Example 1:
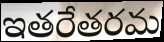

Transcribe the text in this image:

ఇతరేతరమ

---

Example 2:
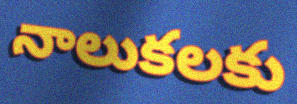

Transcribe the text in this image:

నాలుకలకు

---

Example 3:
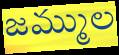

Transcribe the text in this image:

జమ్ముల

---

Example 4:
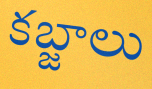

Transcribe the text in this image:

కబ్జాలు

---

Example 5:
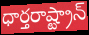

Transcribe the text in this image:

ధార్తరాష్ట్రాన్